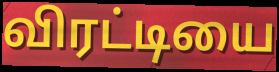
விரட்டியை